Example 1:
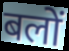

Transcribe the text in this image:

बलों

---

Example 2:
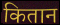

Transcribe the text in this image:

कितान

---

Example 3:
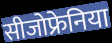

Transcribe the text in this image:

सीजोफ्रेनिया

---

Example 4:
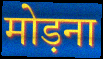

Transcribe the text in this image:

मोड़ना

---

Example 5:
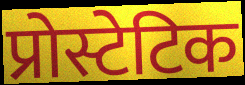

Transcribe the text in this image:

प्रोस्टेटिक